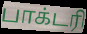
பாக்டரி